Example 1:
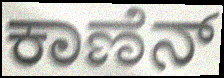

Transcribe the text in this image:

ಕಾಣೆನ್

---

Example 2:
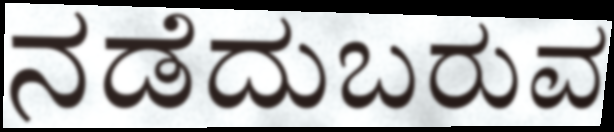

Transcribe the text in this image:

ನಡೆದುಬರುವ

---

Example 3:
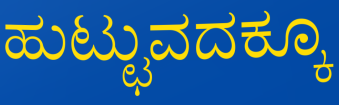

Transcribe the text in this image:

ಹುಟ್ಟುವದಕ್ಕೂ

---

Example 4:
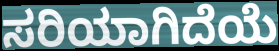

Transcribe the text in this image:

ಸರಿಯಾಗಿದೆಯೆ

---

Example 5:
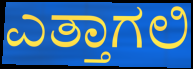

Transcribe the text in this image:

ಎತ್ತಾಗಲಿ